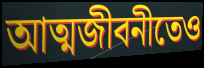
আত্মজীবনীতেও